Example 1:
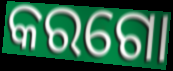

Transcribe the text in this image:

କରଗୋ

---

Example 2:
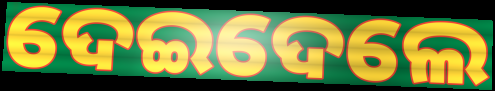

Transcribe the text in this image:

ଦେଇଦେଲେ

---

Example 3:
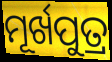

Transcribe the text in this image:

ମୂର୍ଖପୁତ୍ର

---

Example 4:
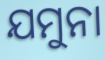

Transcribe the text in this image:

ଯମୁନା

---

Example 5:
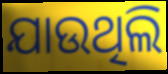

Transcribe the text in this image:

ଯାଉଥିଲି